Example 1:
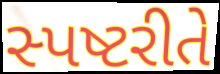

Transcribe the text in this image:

સ્પષ્ટરીતે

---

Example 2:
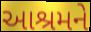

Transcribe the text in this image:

આશ્રમને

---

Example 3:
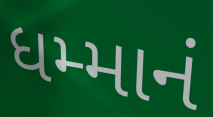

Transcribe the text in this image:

ધમ્માનં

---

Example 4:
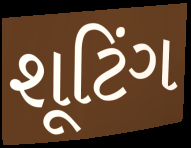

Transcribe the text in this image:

શૂટિંગ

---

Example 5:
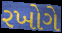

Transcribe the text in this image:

રખોગે